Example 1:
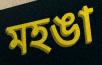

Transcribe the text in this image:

মহঙা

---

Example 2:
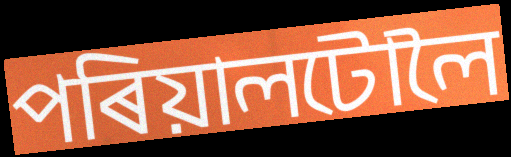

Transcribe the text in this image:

পৰিয়ালটোলৈ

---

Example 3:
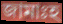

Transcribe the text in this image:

জামাঃহ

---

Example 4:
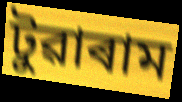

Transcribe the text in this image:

টুৱাৰাম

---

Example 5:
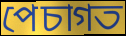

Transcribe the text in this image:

পেচাগত